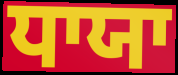
ਧਾਯਾ